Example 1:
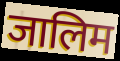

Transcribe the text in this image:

जालिम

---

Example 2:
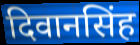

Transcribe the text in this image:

दिवानसिंह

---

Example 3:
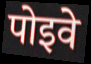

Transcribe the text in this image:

पोइवे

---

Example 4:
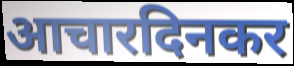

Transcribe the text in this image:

आचारदिनकर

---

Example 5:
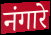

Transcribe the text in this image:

नंगारे